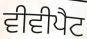
ਵੀਵੀਪੈਟ